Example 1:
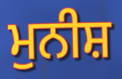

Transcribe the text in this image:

ਮੁਨੀਸ਼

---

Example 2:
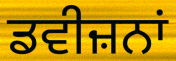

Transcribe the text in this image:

ਡਵੀਜ਼ਨਾਂ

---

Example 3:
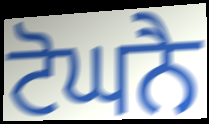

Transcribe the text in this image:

ਟੋਘਨੈ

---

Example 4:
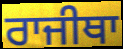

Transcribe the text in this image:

ਰਾਜੀਥਾ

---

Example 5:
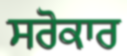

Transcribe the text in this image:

ਸਰੋਕਾਰ